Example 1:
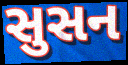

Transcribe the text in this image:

સુસન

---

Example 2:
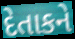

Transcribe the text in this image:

દેતાકને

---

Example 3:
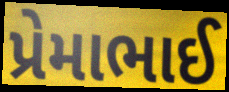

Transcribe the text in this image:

પ્રેમાભાઈ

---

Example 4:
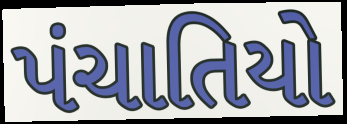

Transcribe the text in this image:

પંચાતિયો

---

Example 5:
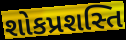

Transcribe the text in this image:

શોકપ્રશસ્તિ